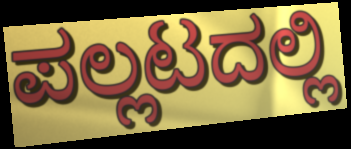
ಪಲ್ಲಟದಲ್ಲಿ